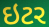
ઇટર